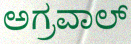
ಅಗ್ರವಾಲ್